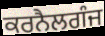
ਕਰਨੈਲਗੰਜ